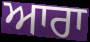
ਆਰਾ